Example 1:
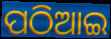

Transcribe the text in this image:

ପଠିଆଇ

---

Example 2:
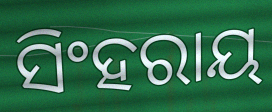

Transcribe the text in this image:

ସିଂହରାୟ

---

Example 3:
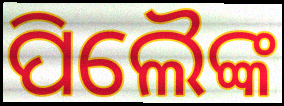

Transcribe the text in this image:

ପିଲୈଙ୍କ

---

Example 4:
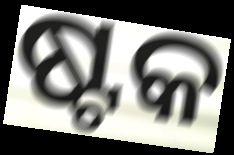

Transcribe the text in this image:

ଷ୍ଟକ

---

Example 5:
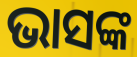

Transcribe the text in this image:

ଭାସଙ୍କ